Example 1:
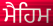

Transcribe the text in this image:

ਮੈਹਿਮ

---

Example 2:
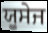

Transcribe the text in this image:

ਯੂਸੇਜ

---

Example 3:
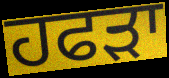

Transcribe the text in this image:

ਹਫੜਾ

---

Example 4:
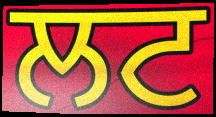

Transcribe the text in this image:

ਲਟ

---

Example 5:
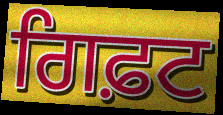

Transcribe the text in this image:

ਗਿਫ਼ਟ